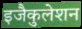
इजैकुलेशन